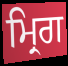
ਮ੍ਰਿਗ